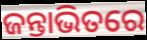
ଜନ୍ତାଭିତରେ